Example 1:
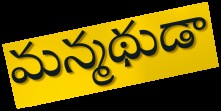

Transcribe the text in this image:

మన్మథుడా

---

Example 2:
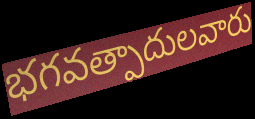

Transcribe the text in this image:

భగవత్పాదులవారు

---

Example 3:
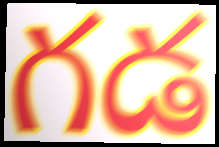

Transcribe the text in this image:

గడ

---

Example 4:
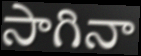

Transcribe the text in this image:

సాగినా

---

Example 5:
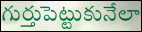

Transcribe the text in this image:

గుర్తుపెట్టుకునేలా